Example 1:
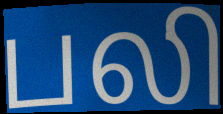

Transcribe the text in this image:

பலி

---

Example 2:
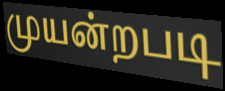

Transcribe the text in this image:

முயன்றபடி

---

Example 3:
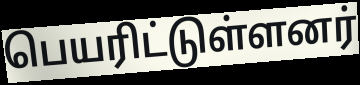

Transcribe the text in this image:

பெயரிட்டுள்ளனர்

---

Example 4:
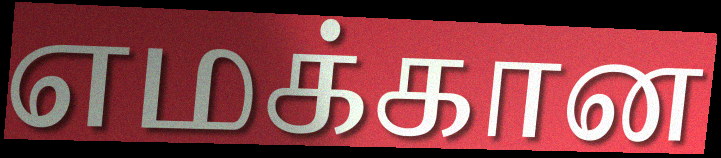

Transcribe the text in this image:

எமக்கான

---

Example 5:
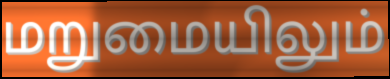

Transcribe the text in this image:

மறுமையிலும்